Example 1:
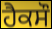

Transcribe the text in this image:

ਹੈਕਸੌ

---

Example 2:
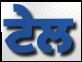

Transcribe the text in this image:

ਟੇਲ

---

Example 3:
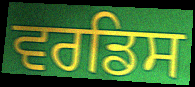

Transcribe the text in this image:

ਵਰਡਿਸ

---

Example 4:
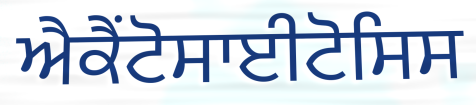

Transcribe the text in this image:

ਐਕੈਂਟੋਸਾਈਟੋਸਿਸ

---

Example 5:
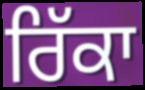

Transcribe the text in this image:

ਰਿੱਕਾ